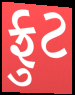
ફ્રુટ